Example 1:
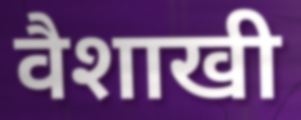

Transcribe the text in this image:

वैशाखी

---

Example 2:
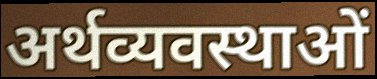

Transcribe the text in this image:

अर्थव्यवस्थाओं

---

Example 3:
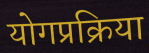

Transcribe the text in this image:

योगप्रक्रिया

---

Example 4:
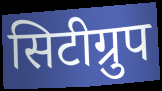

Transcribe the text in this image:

सिटीग्रुप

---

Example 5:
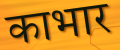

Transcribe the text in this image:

काभार